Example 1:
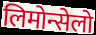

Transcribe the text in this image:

लिमोन्सेलो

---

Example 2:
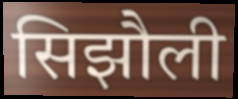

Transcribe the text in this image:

सिझौली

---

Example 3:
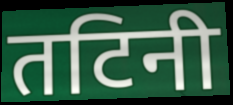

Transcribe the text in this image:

तटिनी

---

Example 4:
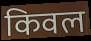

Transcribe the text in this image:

किवल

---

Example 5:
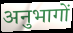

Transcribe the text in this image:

अनुभागों